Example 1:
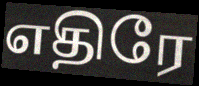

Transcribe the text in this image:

எதிரே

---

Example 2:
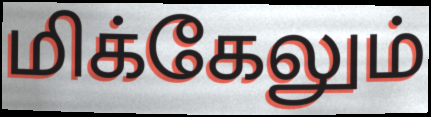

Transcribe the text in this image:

மிக்கேலும்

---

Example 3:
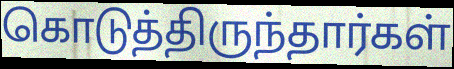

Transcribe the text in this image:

கொடுத்திருந்தார்கள்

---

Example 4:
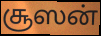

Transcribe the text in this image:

சூஸன்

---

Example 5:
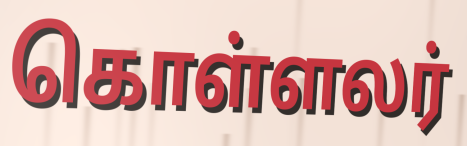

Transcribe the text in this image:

கொள்ளலர்